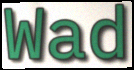
Wad